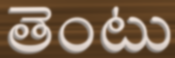
తెంటు